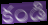
కండి